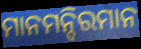
ମାନମନ୍ଦିରମାନ